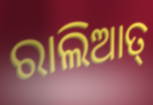
ରାଲିଆତ୍